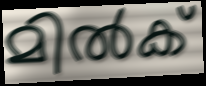
മിൽക്